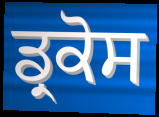
ਡ੍ਰਕੋਸ